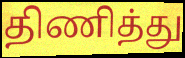
திணித்து